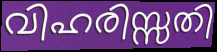
വിഹരിസ്സതി